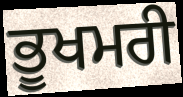
ਭੂਖਮਰੀ